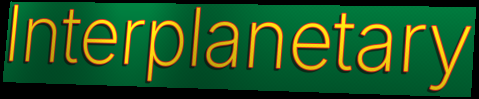
Interplanetary